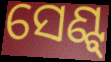
ସେଣ୍ଟ୍